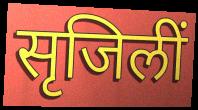
सृजिलीं